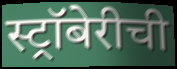
स्ट्रॉबेरीची